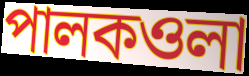
পালকওলা